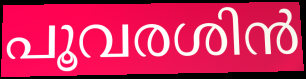
പൂവരശിൻ